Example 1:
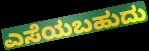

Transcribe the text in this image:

ಎಸೆಯಬಹುದು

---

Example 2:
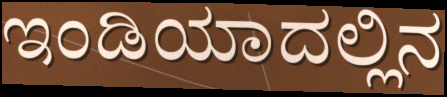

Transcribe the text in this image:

ಇಂಡಿಯಾದಲ್ಲಿನ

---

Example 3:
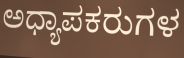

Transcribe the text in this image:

ಅಧ್ಯಾಪಕರುಗಳ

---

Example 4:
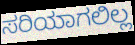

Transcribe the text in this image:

ಸರಿಯಾಗಲಿಲ್ಲ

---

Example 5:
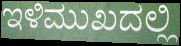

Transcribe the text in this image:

ಇಳಿಮುಖದಲ್ಲಿ